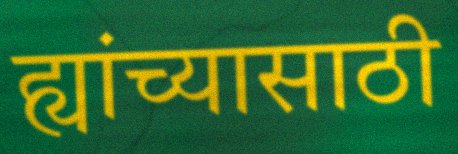
ह्यांच्यासाठी